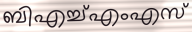
ബിഎച്ച്എംഎസ്